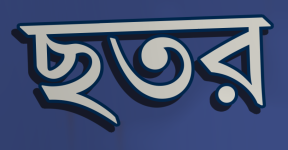
ছতর